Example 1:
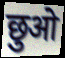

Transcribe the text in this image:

छुओ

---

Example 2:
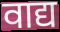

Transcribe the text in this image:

वाद्य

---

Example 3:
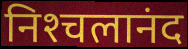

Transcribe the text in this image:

निश्चलानंद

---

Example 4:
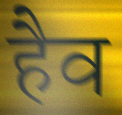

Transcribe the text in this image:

हैव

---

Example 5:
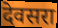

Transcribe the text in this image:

देवसरा